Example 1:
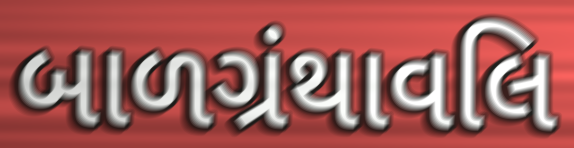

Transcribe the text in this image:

બાળગ્રંથાવલિ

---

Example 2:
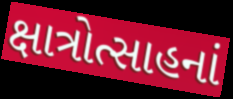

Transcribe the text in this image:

ક્ષાત્રોત્સાહનાં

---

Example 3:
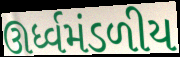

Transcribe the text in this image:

ઊર્ધ્વમંડળીય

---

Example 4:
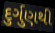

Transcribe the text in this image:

દુર્ગુણથી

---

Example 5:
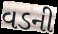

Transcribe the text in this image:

વડની